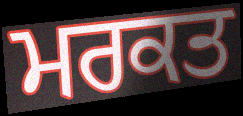
ਮਰਕਤ